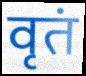
वृतं